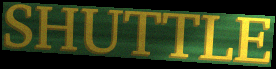
SHUTTLE